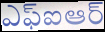
ఎఫ్ఐఆర్